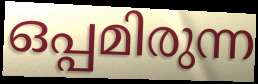
ഒപ്പമിരുന്ന